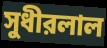
সুধীরলাল